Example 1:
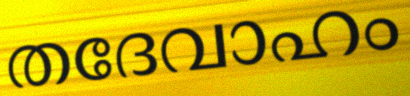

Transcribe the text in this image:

തദേവാഹം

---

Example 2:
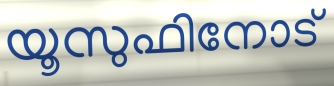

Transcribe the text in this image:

യൂസുഫിനോട്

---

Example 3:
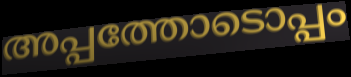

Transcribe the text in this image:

അപ്പത്തോടൊപ്പം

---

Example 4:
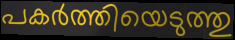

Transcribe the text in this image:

പകർത്തിയെടുത്തു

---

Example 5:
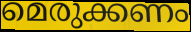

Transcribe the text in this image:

മെരുക്കണം